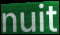
nuit